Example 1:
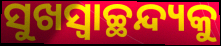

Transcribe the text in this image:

ସୁଖସ୍ଵାଚ୍ଛନ୍ଦ୍ୟକୁ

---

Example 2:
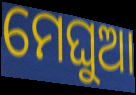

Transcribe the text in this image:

ମେଘୁଆ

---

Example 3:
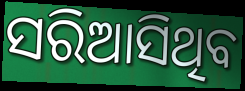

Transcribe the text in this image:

ସରିଆସିଥିବ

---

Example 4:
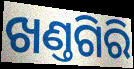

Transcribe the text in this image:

ଖଣ୍ତଗିରି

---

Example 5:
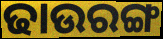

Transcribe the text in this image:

ଢାଉରଙ୍ଗ